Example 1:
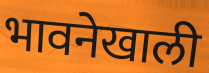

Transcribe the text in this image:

भावनेखाली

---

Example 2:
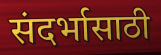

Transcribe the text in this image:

संदर्भासाठी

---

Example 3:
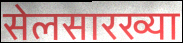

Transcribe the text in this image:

सेलसारख्या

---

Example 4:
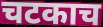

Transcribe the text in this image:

चटकाच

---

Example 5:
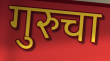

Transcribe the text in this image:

गुरुचा